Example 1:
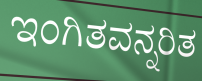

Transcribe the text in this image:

ಇಂಗಿತವನ್ನರಿತ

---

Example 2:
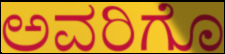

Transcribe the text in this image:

ಅವರಿಗೊ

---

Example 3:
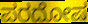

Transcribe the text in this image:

ಪರದೋಷ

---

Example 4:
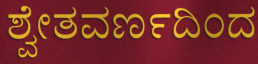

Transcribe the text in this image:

ಶ್ವೇತವರ್ಣದಿಂದ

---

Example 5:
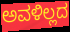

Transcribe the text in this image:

ಅವಳಿಲ್ಲದ